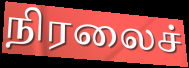
நிரலைச்